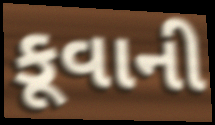
કૂવાની